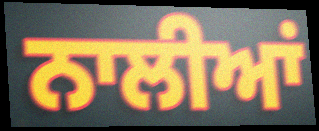
ਨਾਲੀਆਂ